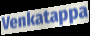
Venkatappa